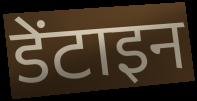
डेंटाइन